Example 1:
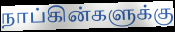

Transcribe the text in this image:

நாப்கின்களுக்கு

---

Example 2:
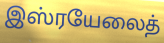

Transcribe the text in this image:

இஸ்ரயேலைத்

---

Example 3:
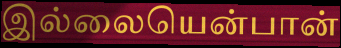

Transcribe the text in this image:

இல்லையென்பான்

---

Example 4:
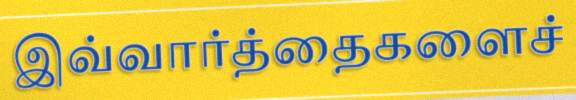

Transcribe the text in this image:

இவ்வார்த்தைகளைச்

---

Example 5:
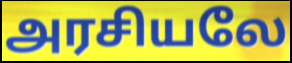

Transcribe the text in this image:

அரசியலே